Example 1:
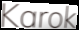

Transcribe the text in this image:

Karok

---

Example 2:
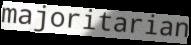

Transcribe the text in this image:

majoritarian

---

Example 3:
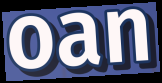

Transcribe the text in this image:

oan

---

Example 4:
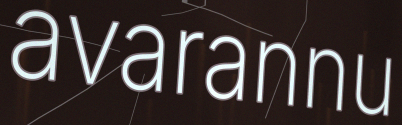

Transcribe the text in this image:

avarannu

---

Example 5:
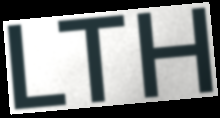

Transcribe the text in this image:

LTH